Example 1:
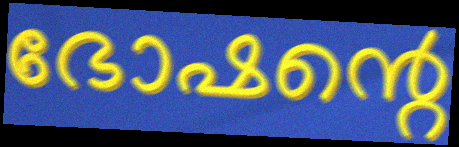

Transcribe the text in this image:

ഭോഷന്റെ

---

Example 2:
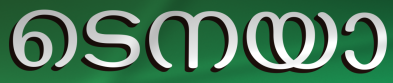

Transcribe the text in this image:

ടെനയാ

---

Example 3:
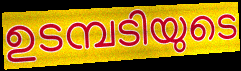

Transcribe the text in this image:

ഉടമ്പടിയുടെ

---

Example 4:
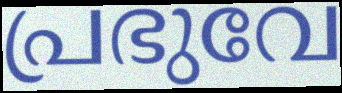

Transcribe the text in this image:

പ്രഭുവേ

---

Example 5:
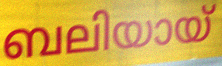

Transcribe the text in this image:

ബലിയായ്